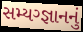
સમ્યગ્જ્ઞાનનું